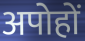
अपोहों